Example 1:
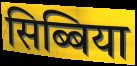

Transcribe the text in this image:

सिब्बिया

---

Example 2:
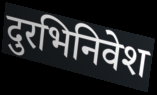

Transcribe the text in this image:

दुरभिनिवेश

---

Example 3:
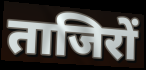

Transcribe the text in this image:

ताजिरों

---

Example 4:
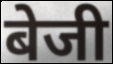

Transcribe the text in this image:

बेजी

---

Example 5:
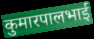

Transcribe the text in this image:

कुमारपालभाई